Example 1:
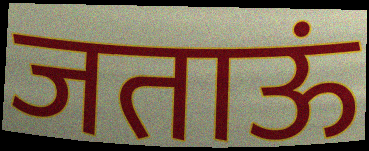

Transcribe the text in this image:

जताऊं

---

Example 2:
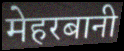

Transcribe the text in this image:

मेहरबानी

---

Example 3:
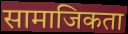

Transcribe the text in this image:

सामाजिकता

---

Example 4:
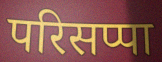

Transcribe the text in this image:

परिसप्पा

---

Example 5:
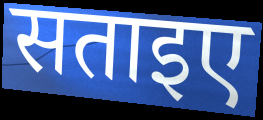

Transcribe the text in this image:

सताइए